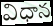
విధాన